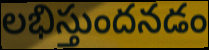
లభిస్తుందనడం